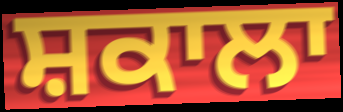
ਸ਼ਕਾਲਾ